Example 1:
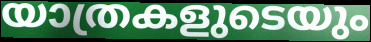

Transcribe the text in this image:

യാത്രകളുടെയും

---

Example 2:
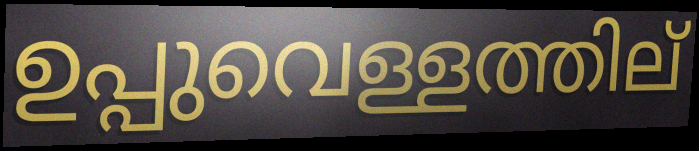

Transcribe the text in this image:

ഉപ്പുവെള്ളത്തില്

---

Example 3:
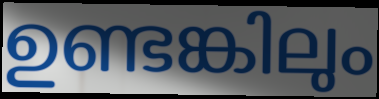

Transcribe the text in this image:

ഉണ്ടങ്കിലും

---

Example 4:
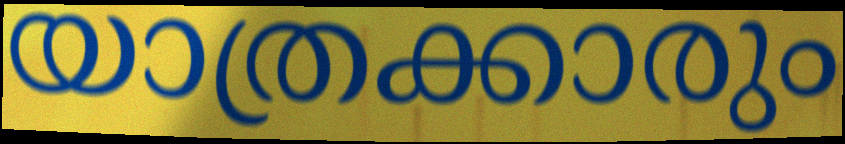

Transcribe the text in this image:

യാത്രക്കാരും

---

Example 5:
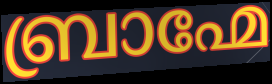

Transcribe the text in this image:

ബ്രാഹ്മേ